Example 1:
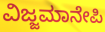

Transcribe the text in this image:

ವಿಜ್ಜಮಾನೇಪಿ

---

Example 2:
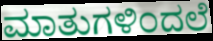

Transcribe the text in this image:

ಮಾತುಗಳಿಂದಲೆ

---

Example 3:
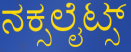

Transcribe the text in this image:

ನಕ್ಸಲೈಟ್ಸ್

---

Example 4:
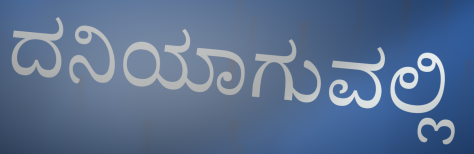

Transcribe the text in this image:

ದನಿಯಾಗುವಲ್ಲಿ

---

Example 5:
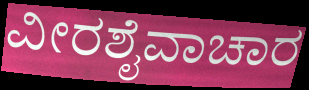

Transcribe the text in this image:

ವೀರಶೈವಾಚಾರ